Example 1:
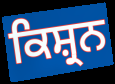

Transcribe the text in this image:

ਕਿਸ਼੍ਰਨ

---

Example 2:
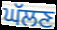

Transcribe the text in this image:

ਘੱਲਣ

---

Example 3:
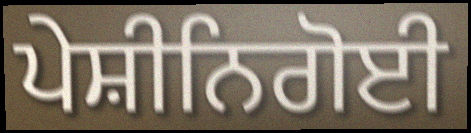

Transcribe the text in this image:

ਪੇਸ਼ੀਨਿਗੋਈ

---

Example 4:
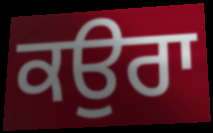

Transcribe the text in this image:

ਕਉਰਾ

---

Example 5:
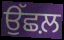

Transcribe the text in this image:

ਉੱਛਲ਼